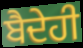
ਬੈਦੇਹੀ